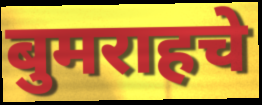
बुमराहचे